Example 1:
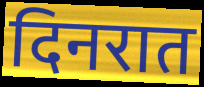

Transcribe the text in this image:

दिनरात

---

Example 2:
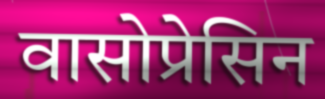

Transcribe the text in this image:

वासोप्रेसिन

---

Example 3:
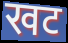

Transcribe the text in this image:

खट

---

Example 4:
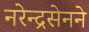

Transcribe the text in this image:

नरेन्द्रसेनने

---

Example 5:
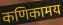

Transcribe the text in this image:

कणिकामय